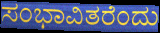
ಸಂಭಾವಿತರೆಂದು